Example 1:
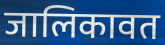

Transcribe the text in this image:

जालिकावत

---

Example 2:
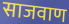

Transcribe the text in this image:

साजवाण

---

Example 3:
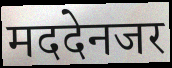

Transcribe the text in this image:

मददेनजर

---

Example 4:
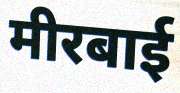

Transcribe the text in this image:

मीरबाई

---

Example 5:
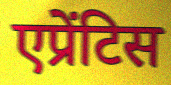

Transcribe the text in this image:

एप्रेंटिस